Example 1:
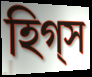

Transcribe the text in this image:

হিগ্স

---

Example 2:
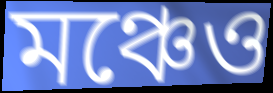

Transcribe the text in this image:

মঞ্চেও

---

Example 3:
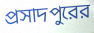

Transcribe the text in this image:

প্রসাদপুরের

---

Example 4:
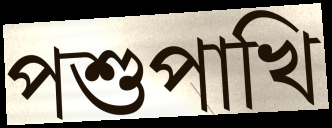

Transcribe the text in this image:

পশুপাখি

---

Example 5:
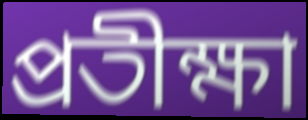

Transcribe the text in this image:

প্রতীক্ষা